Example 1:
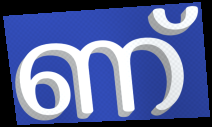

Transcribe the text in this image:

ണ്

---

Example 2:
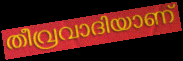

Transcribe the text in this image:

തീവ്രവാദിയാണ്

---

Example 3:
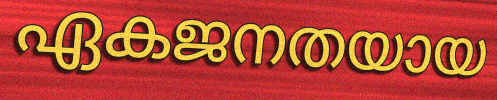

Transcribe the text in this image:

ഏകജനതയായ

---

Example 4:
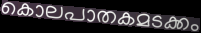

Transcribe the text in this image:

കൊലപാതകമടക്കം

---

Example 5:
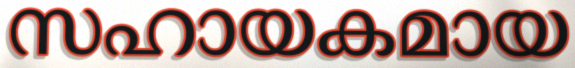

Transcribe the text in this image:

സഹായകമായ